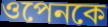
ওপেনকে